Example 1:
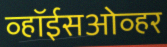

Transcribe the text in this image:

व्हॉईसओव्हर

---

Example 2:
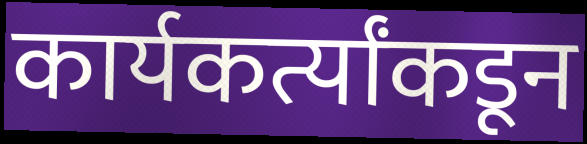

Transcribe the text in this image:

कार्यकर्त्यांकडून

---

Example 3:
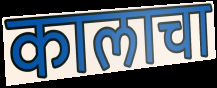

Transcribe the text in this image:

कालाचा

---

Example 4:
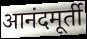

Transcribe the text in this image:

आनंदमूर्ती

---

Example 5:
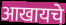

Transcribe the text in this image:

आखायचे